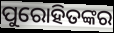
ପୁରୋହିତଙ୍କର